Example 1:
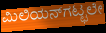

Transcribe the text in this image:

ಮಿಲಿಯನ್‌ಗಟ್ಟಲೇ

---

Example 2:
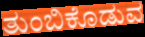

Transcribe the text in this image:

ತುಂಬಿಕೊಡುವ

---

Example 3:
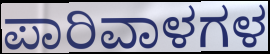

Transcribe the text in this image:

ಪಾರಿವಾಳಗಳ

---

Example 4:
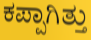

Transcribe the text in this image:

ಕಪ್ಪಾಗಿತ್ತು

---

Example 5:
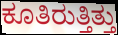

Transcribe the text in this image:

ಕೂತಿರುತ್ತಿತ್ತು